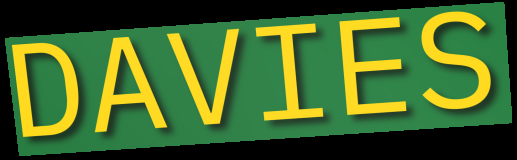
DAVIES